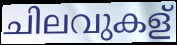
ചിലവുകള്